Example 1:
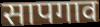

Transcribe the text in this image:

सापगाव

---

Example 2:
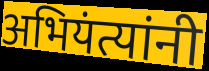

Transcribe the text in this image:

अभियंत्यांनी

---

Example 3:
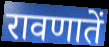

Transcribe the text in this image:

रावणातें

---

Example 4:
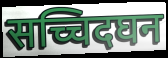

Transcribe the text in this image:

सच्चिदघन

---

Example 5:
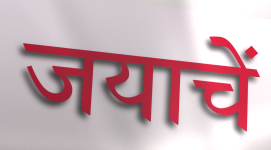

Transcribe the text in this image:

जयाचें